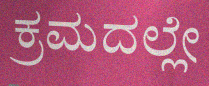
ಕ್ರಮದಲ್ಲೇ